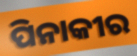
ପିନାକୀର